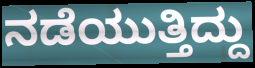
ನಡೆಯುತ್ತಿದ್ದು